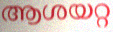
ആശയറ്റ